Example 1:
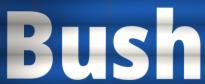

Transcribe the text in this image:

Bush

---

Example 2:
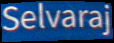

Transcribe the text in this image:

Selvaraj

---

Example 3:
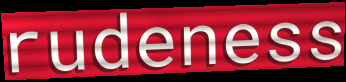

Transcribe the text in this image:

rudeness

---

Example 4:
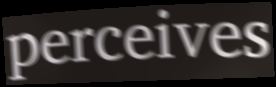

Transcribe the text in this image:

perceives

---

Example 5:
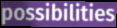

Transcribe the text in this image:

possibilities